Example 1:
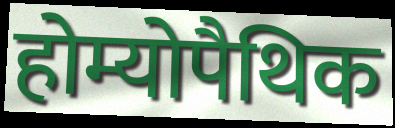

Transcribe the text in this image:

होम्‍योपैथिक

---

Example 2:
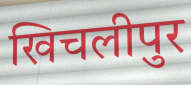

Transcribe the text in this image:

खिचलीपुर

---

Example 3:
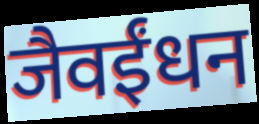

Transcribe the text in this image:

जैवईंधन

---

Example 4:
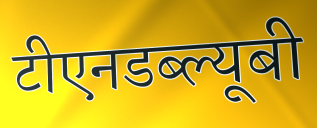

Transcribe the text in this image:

टीएनडब्ल्यूबी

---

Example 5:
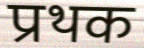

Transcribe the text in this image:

प्रथक